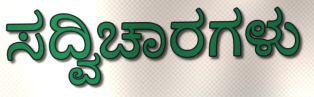
ಸದ್ವಿಚಾರಗಳು